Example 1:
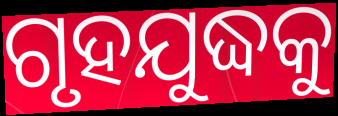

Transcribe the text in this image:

ଗୃହଯୁଦ୍ଧକୁ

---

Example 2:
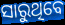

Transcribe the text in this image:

ସାରୁଥିବେ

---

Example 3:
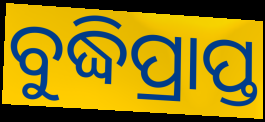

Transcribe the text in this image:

ବୁଦ୍ଧିପ୍ରାପ୍ତ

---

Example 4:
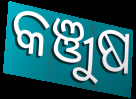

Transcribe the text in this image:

କଞ୍ଜୁଷ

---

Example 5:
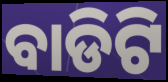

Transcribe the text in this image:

ବାଡିଟି